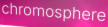
chromosphere